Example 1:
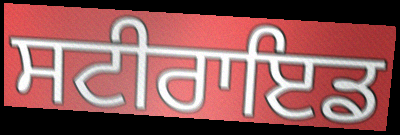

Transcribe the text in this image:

ਸਟੀਰਾਇਡ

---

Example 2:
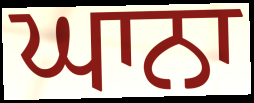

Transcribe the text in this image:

ਘਾਨਾ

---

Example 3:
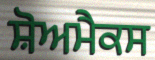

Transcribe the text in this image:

ਸ਼ੋਅਮੈਕਸ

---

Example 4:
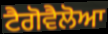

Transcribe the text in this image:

ਟੈਗੋਵੈਲੋਆ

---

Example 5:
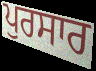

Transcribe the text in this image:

ਪੁਰਸਾਰ